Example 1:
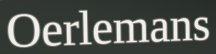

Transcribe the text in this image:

Oerlemans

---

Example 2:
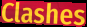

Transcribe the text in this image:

Clashes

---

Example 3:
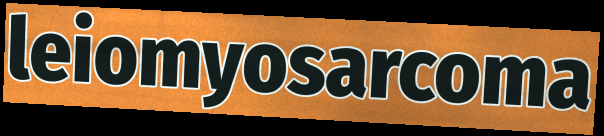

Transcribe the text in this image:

leiomyosarcoma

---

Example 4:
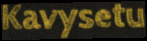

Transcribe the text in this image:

Kavysetu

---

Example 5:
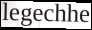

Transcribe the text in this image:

legechhe